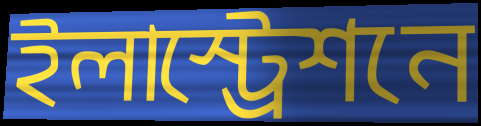
ইলাস্ট্রেশনে